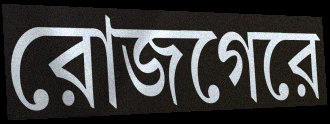
রোজগেরে